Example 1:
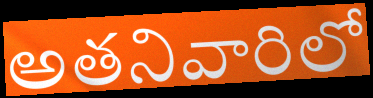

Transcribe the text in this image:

అతనివారిలో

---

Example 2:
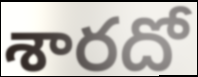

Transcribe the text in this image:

శారదో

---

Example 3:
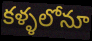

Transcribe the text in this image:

కళ్ళలోనూ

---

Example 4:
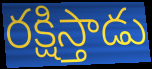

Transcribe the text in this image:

రక్షిస్తాడు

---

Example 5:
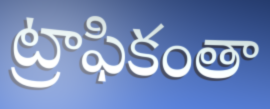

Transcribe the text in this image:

ట్రాఫికంతా